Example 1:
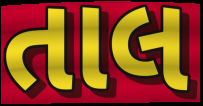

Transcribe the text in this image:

તાલ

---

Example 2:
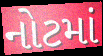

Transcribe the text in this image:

નોટમાં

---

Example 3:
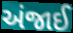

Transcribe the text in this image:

અંજાઈ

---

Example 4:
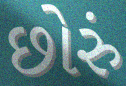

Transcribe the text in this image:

છોરું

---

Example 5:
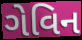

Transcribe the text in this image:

ગેવિન